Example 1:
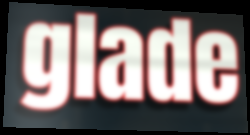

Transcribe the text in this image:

glade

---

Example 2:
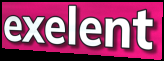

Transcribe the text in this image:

exelent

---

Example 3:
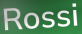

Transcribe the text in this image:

Rossi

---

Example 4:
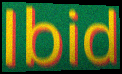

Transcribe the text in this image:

Ibid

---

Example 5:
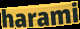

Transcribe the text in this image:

harami